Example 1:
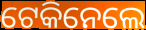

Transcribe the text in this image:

ଟେକିନେଲେ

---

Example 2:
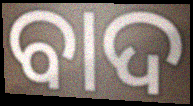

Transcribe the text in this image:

ବାଦ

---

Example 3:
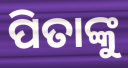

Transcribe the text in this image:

ପିତାଙ୍କୁ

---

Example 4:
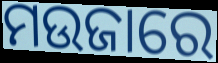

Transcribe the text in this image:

ମଉଜାରେ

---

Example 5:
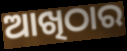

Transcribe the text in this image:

ଆଖିଠାର